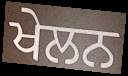
ਖੇਲਨ